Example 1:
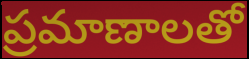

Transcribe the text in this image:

ప్రమాణాలతో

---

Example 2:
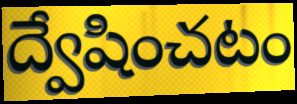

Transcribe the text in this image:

ద్వేషించటం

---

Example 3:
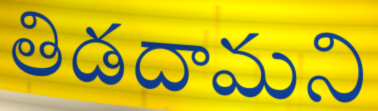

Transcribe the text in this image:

తిడదామని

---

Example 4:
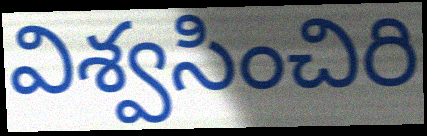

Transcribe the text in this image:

విశ్వసించిరి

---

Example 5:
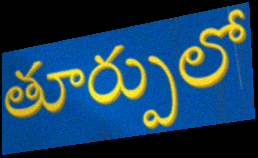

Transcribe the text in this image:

తూర్పులో